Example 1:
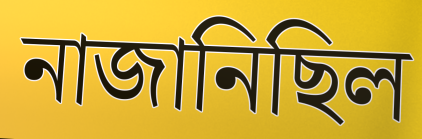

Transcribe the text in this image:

নাজানিছিল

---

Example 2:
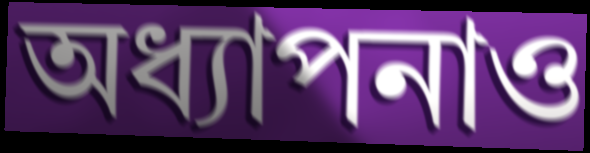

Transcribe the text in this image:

অধ্যাপনাও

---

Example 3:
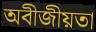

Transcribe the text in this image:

অবীজীয়তা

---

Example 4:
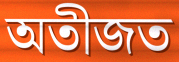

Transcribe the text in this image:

অতীজত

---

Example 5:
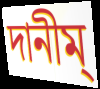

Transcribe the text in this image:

দানীম্